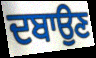
ਦਬਾਉਣ